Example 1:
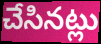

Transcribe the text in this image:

చేసినట్లు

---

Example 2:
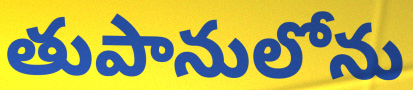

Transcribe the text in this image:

తుపానులోను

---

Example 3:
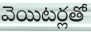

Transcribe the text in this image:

వెయిటర్లతో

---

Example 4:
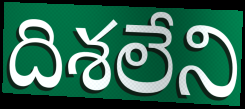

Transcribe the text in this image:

దిశలేని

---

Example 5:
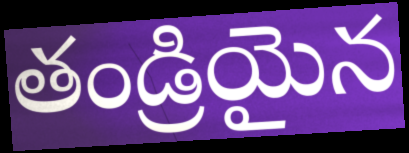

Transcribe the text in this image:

తండ్రియైన